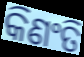
କିଣଂତି